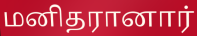
மனிதரானார்